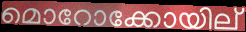
മൊറോക്കോയില്